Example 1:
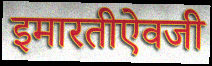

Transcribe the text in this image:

इमारतीऐवजी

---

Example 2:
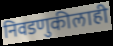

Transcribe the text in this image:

निवडणुकीलाही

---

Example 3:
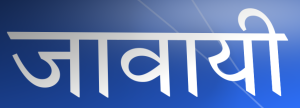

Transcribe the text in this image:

जावायी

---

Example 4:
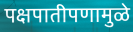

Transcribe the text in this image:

पक्षपातीपणामुळे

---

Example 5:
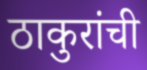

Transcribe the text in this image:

ठाकुरांची